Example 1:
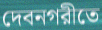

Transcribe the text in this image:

দেবনগরীতে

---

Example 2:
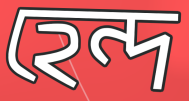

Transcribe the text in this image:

হেন্দ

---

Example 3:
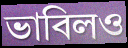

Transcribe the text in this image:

ভাবিলও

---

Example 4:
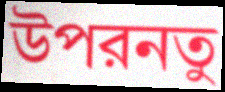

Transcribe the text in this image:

উপরনতু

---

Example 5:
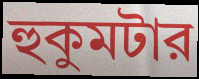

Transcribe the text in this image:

হুকুমটার